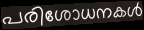
പരിശോധനകൾ